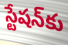
స్టేషన్‍కు